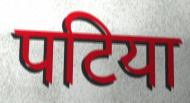
पटिया